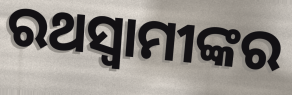
ରଥସ୍ୱାମୀଙ୍କର